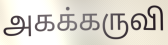
அகக்கருவி